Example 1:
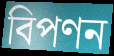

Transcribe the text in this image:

বিপণন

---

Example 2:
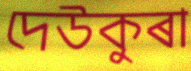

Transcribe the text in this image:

দেউকুৰা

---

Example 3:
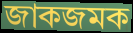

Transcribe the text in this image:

জাকজমক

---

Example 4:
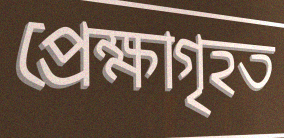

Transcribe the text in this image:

প্ৰেক্ষাগৃহত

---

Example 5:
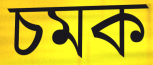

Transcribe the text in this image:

চমক